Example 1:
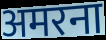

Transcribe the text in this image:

अमरना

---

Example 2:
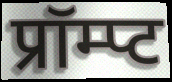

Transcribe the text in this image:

प्रॉम्प्ट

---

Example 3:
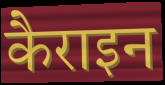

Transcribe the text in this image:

कैराइन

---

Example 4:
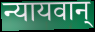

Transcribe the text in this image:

न्यायवान्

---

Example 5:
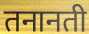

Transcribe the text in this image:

तनानती